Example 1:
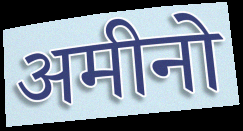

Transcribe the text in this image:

अमीनो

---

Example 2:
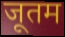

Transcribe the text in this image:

जूतम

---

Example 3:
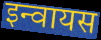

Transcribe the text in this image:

इन्वायस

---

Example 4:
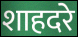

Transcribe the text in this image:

शाहदरे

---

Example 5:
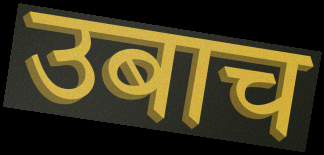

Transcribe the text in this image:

उबाच